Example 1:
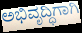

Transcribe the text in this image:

ಅಭಿವೃದ್ಧಿಗಾಗಿ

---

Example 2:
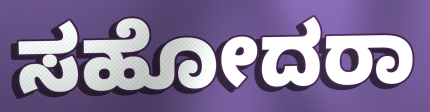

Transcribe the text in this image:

ಸಹೋದರಾ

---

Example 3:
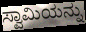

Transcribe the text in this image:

ಸ್ವಾಮಿಯನ್ನು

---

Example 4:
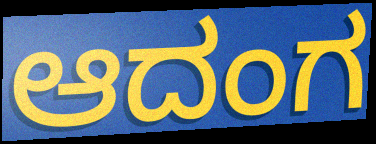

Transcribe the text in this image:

ಆದಂಗ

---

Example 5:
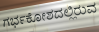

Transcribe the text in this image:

ಗರ್ಭಕೋಶದಲ್ಲಿರುವ